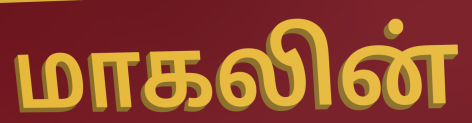
மாகலின்